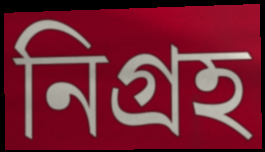
নিগ্রহ